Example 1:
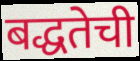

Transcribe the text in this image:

बद्धतेची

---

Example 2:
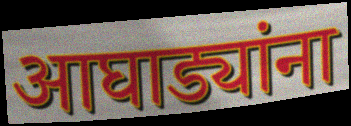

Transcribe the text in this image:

आघाड्यांना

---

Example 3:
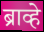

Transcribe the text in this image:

ब्राव्हे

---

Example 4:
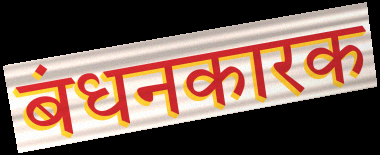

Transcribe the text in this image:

बंधनकारक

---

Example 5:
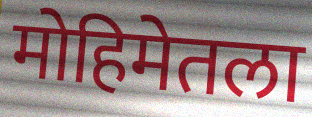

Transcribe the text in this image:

मोहिमेतला